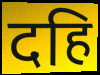
दहि